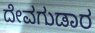
ದೇವಗುಡಾರ